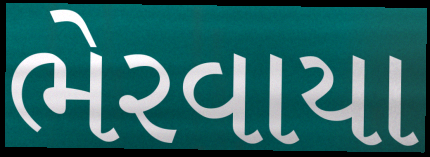
ભેરવાયા